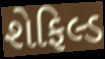
શેફિલ્ડ